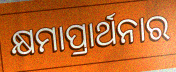
କ୍ଷମାପ୍ରାର୍ଥନାର